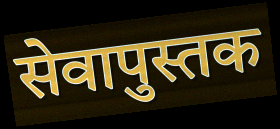
सेवापुस्तक